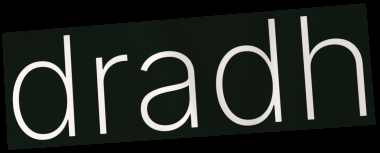
dradh